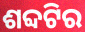
ଶବ୍ଦଟିର